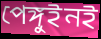
পেঙ্গুইনই